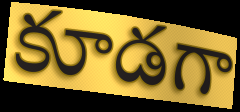
కూడగా